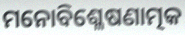
ମନୋବିଶ୍ଳେଷଣାତ୍ମକ